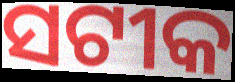
ସଟୀକ